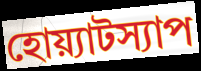
হোয়্যাটস্যাপ